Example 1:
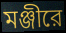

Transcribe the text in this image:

মঞ্জীরে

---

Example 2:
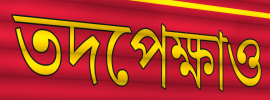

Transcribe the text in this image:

তদপেক্ষাও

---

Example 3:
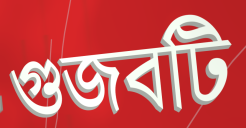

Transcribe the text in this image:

গুজবটি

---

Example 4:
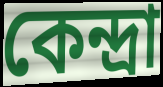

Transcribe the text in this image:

কেন্দ্রা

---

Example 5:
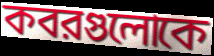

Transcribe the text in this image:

কবরগুলোকে